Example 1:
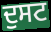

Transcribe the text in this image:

ਦੁਸਟ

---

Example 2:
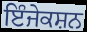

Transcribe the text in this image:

ਇੰਜੇਕਸ਼ਨ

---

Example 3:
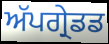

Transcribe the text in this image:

ਅੱਪਗ੍ਰੇਡਡ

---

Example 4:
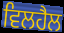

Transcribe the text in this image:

ਵਿਲਹੈਲ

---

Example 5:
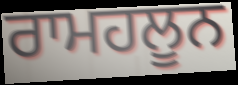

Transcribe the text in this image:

ਰਾਮਹਲੂਨ